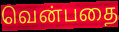
வென்பதை